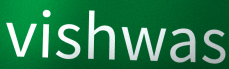
vishwas